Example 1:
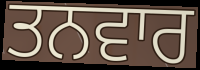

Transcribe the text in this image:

ਤਨਵਾਰ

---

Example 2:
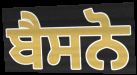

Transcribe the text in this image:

ਬੈਸਨੋ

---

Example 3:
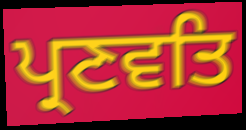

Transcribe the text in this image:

ਪ੍ਰਣਵਤਿ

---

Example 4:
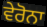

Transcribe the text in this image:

ਵੇਰੋਨਾ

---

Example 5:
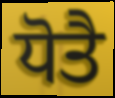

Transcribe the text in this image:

ਧੋਤੈ